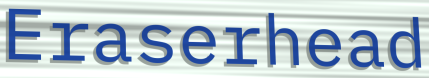
Eraserhead